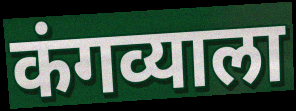
कंगव्याला